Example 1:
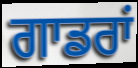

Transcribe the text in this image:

ਗਾਡਰਾਂ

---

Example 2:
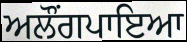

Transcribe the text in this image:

ਅਲੌਂਗਪਾਇਆ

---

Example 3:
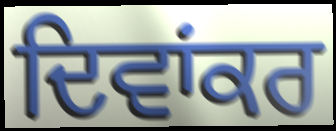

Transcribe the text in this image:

ਦਿਵਾਂਕਰ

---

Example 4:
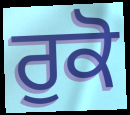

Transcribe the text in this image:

ਰੁਕੋ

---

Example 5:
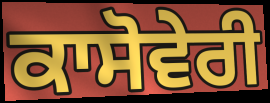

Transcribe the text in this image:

ਕਾਸੋਵੇਰੀ